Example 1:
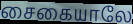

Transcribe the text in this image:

சைகையாலே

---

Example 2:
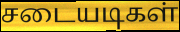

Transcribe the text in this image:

சடையடிகள்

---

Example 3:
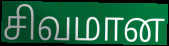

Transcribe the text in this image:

சிவமான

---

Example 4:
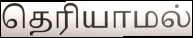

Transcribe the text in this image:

தெரியாமல்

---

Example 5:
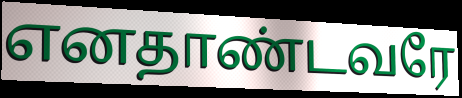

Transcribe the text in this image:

எனதாண்டவரே